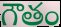
గౌతం